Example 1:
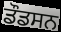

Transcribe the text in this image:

ਡੌਡਸਨ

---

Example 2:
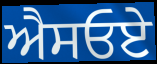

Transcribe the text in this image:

ਐਸਓਏ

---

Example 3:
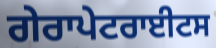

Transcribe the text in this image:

ਗੇਰਾਪੇਟਰਾਈਟਸ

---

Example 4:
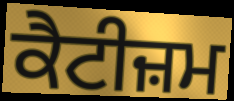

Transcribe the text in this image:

ਕੈਟੀਜ਼ਮ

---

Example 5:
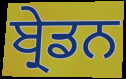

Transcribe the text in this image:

ਬ੍ਰੇਡਨ